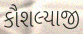
કૌશલ્યાજી